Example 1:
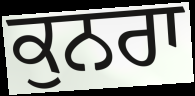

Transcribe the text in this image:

ਕੁਨਰਾ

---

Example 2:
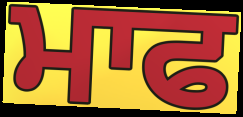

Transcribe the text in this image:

ਮਾਫ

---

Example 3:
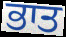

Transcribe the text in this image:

ਭਾਤ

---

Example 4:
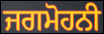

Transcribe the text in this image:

ਜਗਮੋਹਨੀ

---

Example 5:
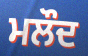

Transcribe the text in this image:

ਮਲੌਦ